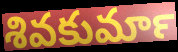
శివకుమార్‍